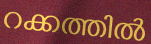
റക്കത്തിൽ